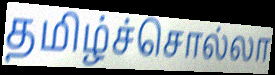
தமிழ்ச்சொல்லா